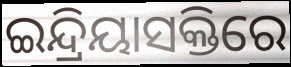
ଇନ୍ଦ୍ରିୟାସକ୍ତିରେ